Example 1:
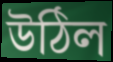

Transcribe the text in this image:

উঠিল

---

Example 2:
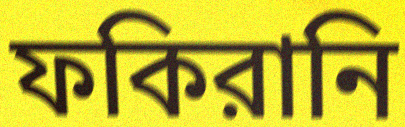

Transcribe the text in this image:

ফকিরানি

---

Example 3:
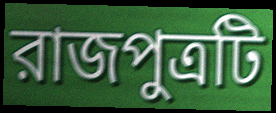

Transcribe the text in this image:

রাজপুত্রটি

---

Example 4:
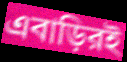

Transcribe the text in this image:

এবাড়িরই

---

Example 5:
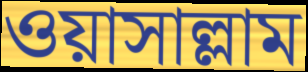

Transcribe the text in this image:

ওয়াসাল্লাম